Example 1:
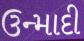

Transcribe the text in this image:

ઉન્માદી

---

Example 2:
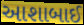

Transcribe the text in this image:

આશાબાઈ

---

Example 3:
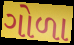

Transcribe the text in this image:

ગોળા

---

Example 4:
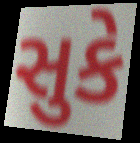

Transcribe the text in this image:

સુકે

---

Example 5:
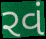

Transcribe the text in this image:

રવં